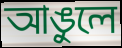
আঙুলে